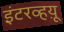
इंटरव्हय़ू